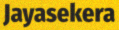
Jayasekera